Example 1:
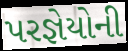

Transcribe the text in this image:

પરજ્ઞેયોની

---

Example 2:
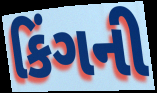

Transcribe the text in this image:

કિંગની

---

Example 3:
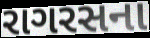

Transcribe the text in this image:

રાગરસના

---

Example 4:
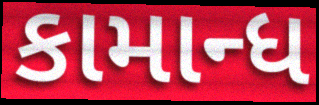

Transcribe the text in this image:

કામાન્ધ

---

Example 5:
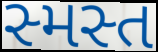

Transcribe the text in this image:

સ્મસ્ત